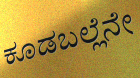
ಕೂಡಬಲ್ಲೆನೇ